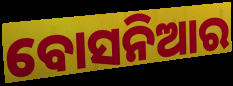
ବୋସନିଆର